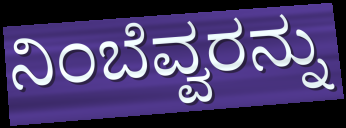
ನಿಂಬೆವ್ವರನ್ನು